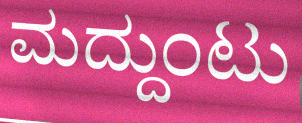
ಮದ್ದುಂಟು